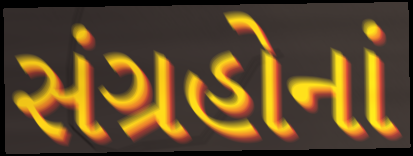
સંગ્રહોનાં